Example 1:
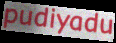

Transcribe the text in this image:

pudiyadu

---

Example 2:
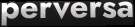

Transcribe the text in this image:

perversa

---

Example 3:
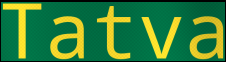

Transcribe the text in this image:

Tatva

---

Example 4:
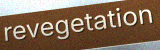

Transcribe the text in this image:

revegetation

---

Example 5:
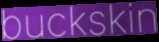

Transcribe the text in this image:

buckskin